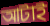
আটাই